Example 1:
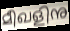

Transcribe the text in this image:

മീഖളിനു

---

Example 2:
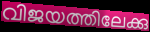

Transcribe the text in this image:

വിജയത്തിലേക്കു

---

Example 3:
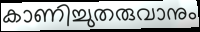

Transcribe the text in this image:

കാണിച്ചുതരുവാനും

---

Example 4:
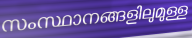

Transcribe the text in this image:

സംസ്ഥാനങ്ങളിലുമുള്ള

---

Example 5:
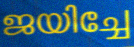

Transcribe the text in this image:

ജയിച്ചേ